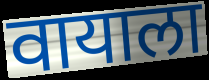
वायाला